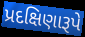
પ્રદક્ષિણારૂપે